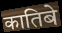
कातिबे